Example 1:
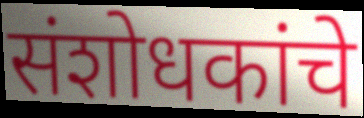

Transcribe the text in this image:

संशोधकांचे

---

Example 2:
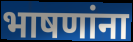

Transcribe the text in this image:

भाषणांना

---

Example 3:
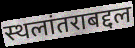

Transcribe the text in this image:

स्थलांतराबद्दल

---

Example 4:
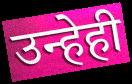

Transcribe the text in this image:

उन्हेही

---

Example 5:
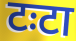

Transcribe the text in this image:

टःटा